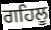
ਗਹਿਲੂ